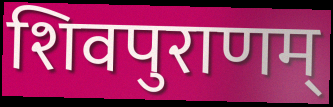
शिवपुराणम्